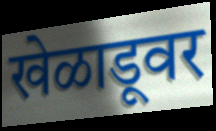
खेळाडूवर